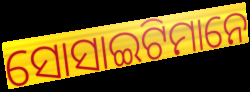
ସୋସାଇଟିମାନେ